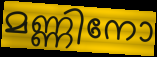
മണ്ണിനോ